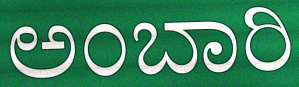
ಅಂಬಾರಿ